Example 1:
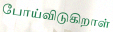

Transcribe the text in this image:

போய்விடுகிறாள்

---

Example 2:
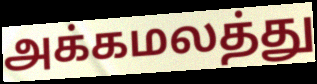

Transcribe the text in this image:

அக்கமலத்து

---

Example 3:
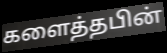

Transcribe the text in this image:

களைத்தபின்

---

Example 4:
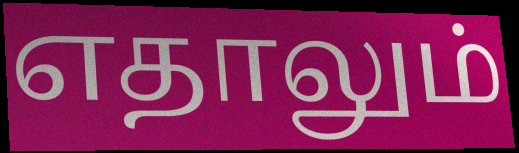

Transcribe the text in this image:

எதாலும்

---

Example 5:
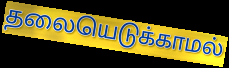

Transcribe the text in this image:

தலையெடுக்காமல்